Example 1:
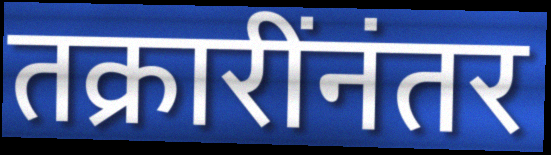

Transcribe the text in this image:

तक्रारींनंतर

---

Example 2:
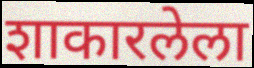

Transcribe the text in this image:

शाकारलेला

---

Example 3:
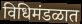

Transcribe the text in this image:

विधिमंडळात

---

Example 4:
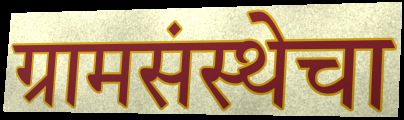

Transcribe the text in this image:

ग्रामसंस्थेचा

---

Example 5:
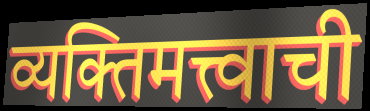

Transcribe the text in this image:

व्यक्तिमत्त्वाची